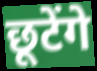
छूटेंगे